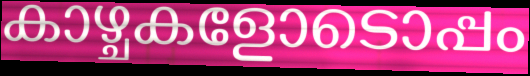
കാഴ്ചകളോടൊപ്പം